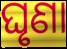
ଘୃଣା